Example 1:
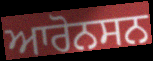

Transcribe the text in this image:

ਆਰੋਨਸਨ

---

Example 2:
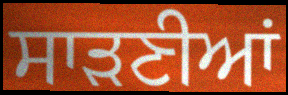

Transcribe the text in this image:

ਸਾੜਣੀਆਂ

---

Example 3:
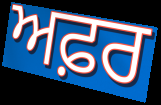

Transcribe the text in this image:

ਅਫ਼ਰ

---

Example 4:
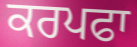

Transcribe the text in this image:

ਕਰਪਫਾ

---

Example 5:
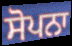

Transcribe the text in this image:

ਸੋਪਨਾ